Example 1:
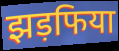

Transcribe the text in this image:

झड़फिया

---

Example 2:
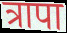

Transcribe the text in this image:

त्रापा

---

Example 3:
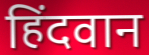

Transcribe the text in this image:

हिंदवान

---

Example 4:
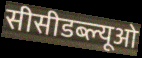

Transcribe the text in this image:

सीसीडब्ल्यूओ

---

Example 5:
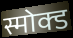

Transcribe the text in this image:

स्मोक्ड